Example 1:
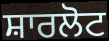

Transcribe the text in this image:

ਸ਼ਾਰਲੋਟ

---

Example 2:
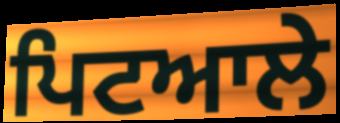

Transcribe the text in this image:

ਪਿਟਆਲੇ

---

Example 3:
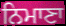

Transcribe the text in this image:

ਨਿਮਾਣਾ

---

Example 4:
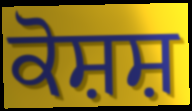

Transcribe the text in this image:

ਕੋਸ਼ਸ਼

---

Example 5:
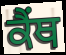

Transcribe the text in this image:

ਕੈਂਥ